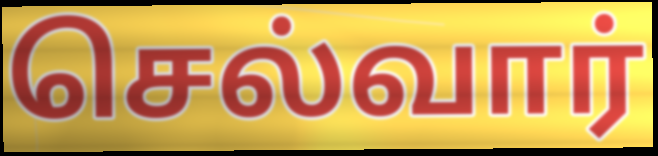
செல்வார்